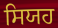
ਸਿਯਹ